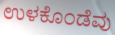
ಉಳಕೊಂಡೆವು